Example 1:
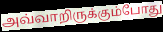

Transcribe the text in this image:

அவ்வாறிருக்கும்போது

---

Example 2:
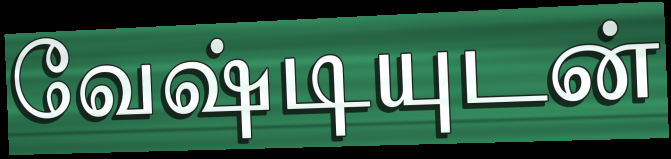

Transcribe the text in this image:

வேஷ்டியுடன்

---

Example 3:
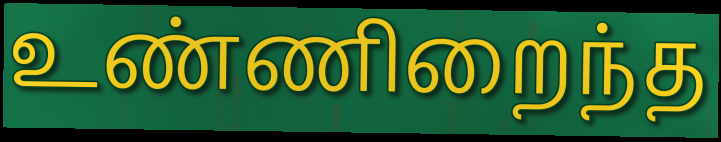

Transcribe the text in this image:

உண்ணிறைந்த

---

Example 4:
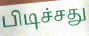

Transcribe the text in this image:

பிடிச்சது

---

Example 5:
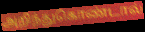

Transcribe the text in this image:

அறிந்துகொண்டால்